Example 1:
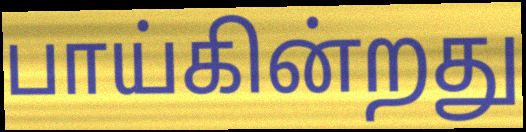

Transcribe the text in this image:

பாய்கின்றது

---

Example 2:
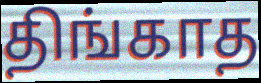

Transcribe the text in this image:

திங்காத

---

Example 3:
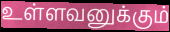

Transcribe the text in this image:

உள்ளவனுக்கும்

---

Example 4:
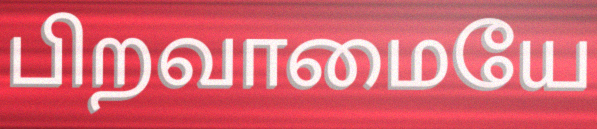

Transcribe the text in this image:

பிறவாமையே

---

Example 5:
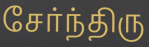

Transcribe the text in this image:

சேர்ந்திரு